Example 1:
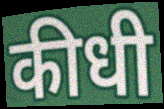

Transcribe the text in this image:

कीधी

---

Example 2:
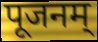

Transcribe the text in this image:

पूजनम्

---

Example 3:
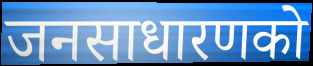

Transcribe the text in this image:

जनसाधारणको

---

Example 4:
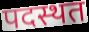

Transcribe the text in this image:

पदस्थत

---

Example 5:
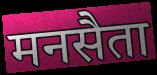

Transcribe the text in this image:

मनसैता